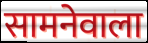
सामनेवाला